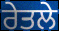
ਰੇਤਲੇ